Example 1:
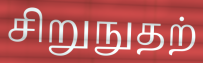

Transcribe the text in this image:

சிறுநுதற்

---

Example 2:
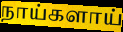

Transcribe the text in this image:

நாய்களாய்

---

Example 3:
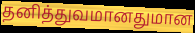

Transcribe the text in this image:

தனித்துவமானதுமான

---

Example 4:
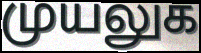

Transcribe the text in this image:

முயலுக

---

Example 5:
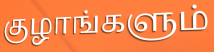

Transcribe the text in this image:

குழாங்களும்